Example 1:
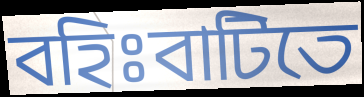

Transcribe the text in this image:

বহিঃবাটিতে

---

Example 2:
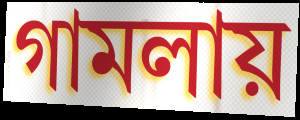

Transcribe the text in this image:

গামলায়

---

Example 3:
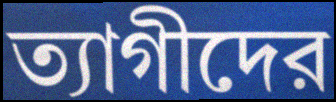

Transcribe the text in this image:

ত্যাগীদের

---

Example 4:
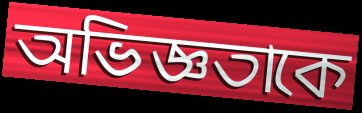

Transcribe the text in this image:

অভিজ্ঞতাকে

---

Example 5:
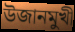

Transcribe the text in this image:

উজানমুখী